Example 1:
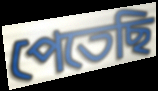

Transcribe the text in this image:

পেতেছি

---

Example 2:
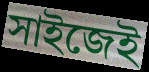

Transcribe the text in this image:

সাইজেই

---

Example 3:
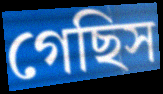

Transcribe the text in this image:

গেছিস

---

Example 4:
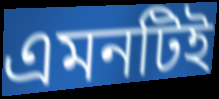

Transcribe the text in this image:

এমনটিই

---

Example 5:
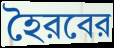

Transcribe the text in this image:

হৈরবের